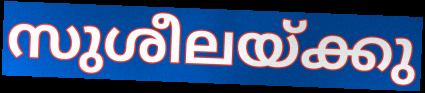
സുശീലയ്ക്കു